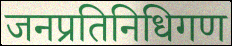
जनप्रतिनिधिगण